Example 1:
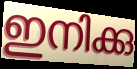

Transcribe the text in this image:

ഇനിക്കു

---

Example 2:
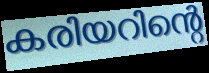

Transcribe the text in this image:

കരിയറിന്റെ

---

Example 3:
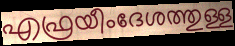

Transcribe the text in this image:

എഫ്രയീംദേശത്തുള്ള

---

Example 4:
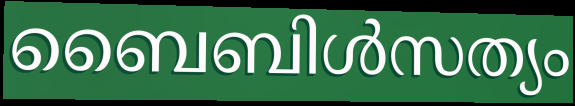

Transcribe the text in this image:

ബൈബിൾസത്യം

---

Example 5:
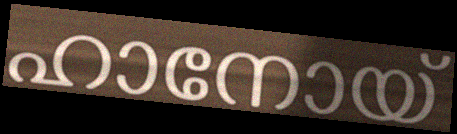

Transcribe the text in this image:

ഹാനോയ്